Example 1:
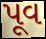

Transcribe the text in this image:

પૂવ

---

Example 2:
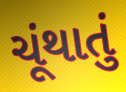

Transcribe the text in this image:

ચૂંથાતું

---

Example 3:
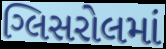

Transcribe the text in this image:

ગ્લિસરોલમાં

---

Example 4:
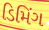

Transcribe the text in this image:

ડિમિંગ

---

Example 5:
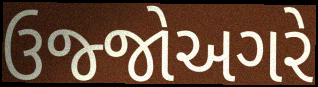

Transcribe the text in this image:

ઉજ્જોઅગરે